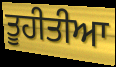
ਤੂਹੀਤੀਆ